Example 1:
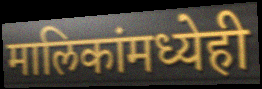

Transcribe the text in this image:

मालिकांमध्येही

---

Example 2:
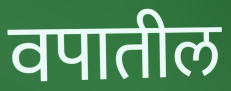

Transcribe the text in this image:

वपातील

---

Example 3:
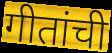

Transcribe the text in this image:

गीतांची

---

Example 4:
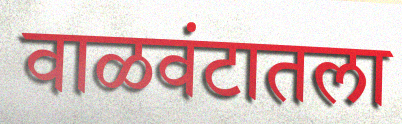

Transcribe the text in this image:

वाळवंटातला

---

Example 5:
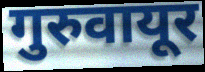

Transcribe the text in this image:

गुरुवायूर